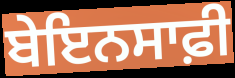
ਬੇਇਨਸਾਫ਼ੀ